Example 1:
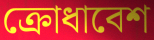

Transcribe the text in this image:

ক্রোধাবেশ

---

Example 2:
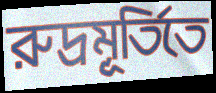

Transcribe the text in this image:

রুদ্রমূর্তিতে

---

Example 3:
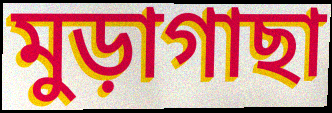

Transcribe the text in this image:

মুড়াগাছা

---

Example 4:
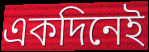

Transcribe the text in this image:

একদিনেই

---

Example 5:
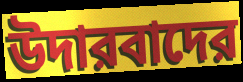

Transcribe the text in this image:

উদারবাদের